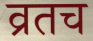
व्रतच